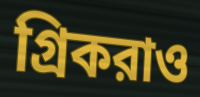
গ্রিকরাও